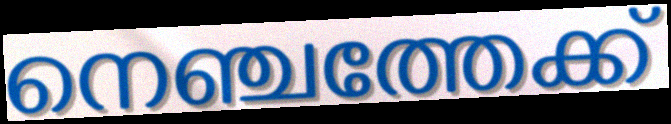
നെഞ്ചത്തേക്ക്